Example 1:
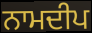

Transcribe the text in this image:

ਨਾਮਦੀਪ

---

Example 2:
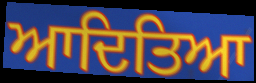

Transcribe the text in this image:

ਆਦਿਤਿਆ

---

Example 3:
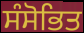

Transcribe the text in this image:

ਸੰਸੋਭਿਤ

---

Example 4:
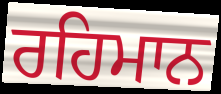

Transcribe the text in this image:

ਰਹਿਮਾਨ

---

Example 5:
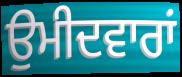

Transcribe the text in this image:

ਉਮੀਦਵਾਰਾਂ